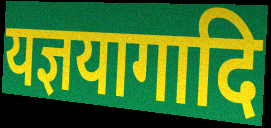
यज्ञयागादि